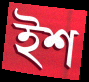
ইশ